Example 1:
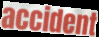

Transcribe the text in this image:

accident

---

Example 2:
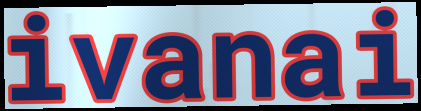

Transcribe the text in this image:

ivanai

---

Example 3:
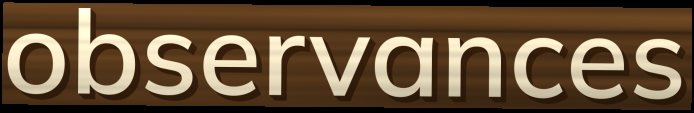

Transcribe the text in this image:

observances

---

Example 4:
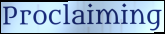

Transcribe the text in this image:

Proclaiming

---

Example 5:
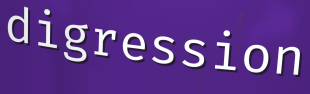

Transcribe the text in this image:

digression